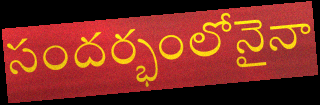
సందర్భంలోనైనా